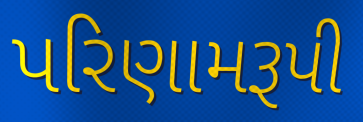
પરિણામરૂપી